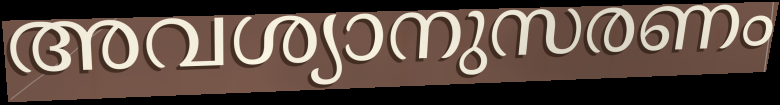
അവശ്യാനുസരണം